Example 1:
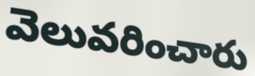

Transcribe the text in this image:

వెలువరించారు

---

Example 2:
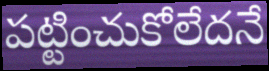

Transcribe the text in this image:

పట్టించుకోలేదనే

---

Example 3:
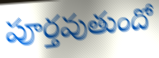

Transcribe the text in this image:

పూర్తవుతుందో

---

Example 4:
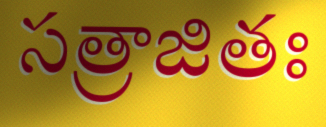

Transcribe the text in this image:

సత్రాజితః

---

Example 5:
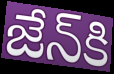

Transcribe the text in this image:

జేన్‌కి